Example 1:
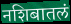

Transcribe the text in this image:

नशिबातलं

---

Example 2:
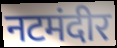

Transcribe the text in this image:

नटमंदीर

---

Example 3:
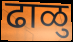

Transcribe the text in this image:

ढाळु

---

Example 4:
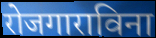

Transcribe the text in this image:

रोजगाराविना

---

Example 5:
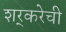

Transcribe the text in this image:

शर्करेची